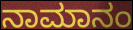
ನಾಮಾನಂ